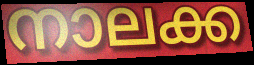
നാലക്ക